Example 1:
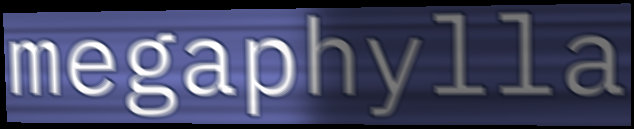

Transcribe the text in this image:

megaphylla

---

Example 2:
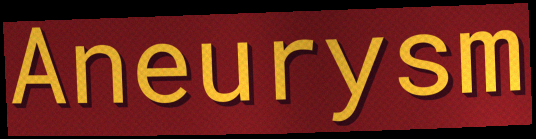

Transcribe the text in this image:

Aneurysm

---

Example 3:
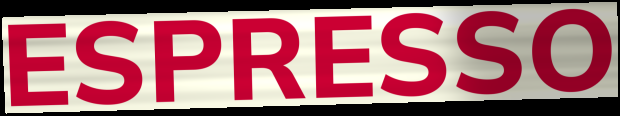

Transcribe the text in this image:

ESPRESSO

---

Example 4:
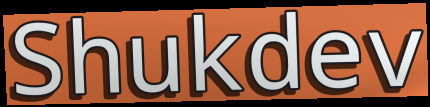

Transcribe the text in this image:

Shukdev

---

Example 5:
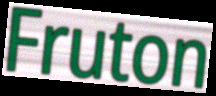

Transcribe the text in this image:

Fruton